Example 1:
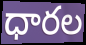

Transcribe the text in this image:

ధారల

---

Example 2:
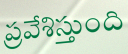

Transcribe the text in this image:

ప్రవేశిస్తుంది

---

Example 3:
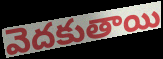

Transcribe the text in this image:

వెదకుతాయి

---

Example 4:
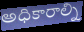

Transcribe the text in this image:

అధికారాల్ని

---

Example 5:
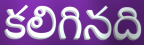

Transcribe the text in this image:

కలిగినది